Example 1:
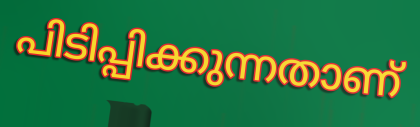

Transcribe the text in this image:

പിടിപ്പിക്കുന്നതാണ്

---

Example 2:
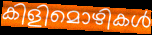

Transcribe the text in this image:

കിളിമൊഴികൾ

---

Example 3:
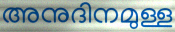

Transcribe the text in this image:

അനുദിനമുള്ള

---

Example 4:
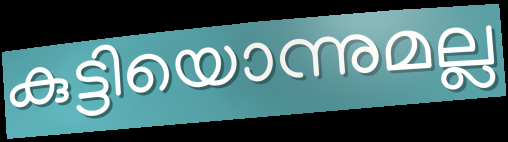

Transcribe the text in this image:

കുട്ടിയൊന്നുമല്ല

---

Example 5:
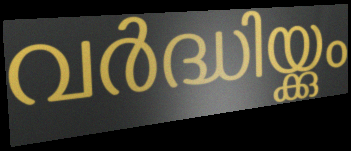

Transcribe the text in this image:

വർദ്ധിയ്ക്കും